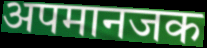
अपमानजक